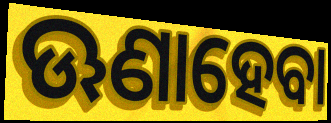
ଊଣାହେବା